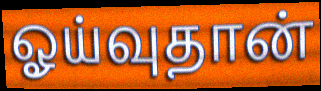
ஓய்வுதான்